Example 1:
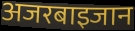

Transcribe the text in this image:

अजरबाइजान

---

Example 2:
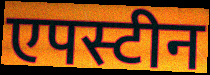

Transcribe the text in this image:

एपस्टीन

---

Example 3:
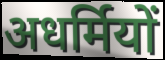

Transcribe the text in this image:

अधर्मियों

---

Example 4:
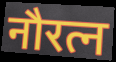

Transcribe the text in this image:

नौरत्न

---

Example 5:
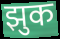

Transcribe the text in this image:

झुक